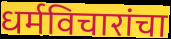
धर्मविचारांचा